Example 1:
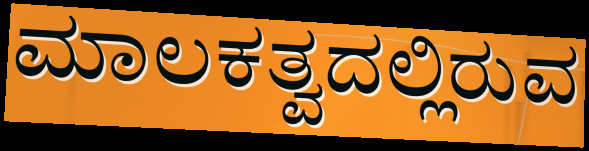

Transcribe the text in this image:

ಮಾಲಕತ್ವದಲ್ಲಿರುವ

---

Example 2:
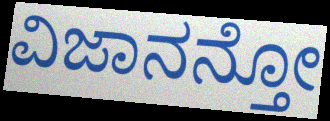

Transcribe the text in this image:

ವಿಜಾನನ್ತೋ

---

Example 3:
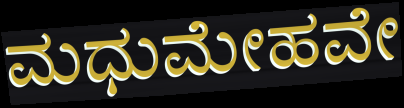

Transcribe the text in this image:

ಮಧುಮೇಹವೇ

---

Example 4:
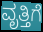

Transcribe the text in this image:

ವೃತ್ತಿಗೆ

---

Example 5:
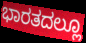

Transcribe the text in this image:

ಭಾರತದಲ್ಲೂ